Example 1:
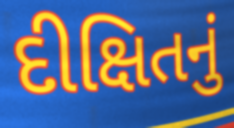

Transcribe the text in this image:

દીક્ષિતનું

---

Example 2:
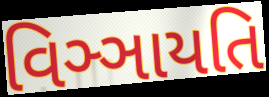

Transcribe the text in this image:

વિઞ્ઞાયતિ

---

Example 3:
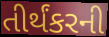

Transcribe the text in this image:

તીર્થંકરની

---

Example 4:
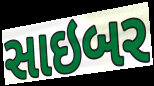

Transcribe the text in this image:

સાઇબર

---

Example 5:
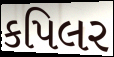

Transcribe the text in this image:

કપિલર